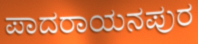
ಪಾದರಾಯನಪುರ